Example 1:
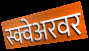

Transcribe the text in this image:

स्क्वेअरवर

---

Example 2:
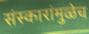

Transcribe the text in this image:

संस्कारांमुळेच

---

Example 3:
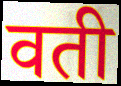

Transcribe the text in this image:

वती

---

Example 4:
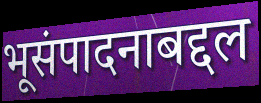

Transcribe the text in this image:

भूसंपादनाबद्दल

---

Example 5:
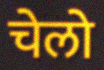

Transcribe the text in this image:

चेलो